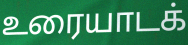
உரையாடக்